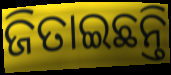
ଜିତାଇଛନ୍ତି